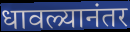
धावल्यानंतर